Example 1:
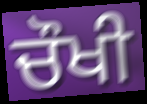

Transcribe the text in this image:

ਚੌਖੀ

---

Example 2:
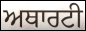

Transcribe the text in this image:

ਅਥਾਰਟੀ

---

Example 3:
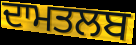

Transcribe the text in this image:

ਦਾਮਤਲਬ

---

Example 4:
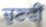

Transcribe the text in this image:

ਚੁਣਵੀਂ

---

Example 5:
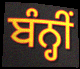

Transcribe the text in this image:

ਬੰਨ੍ਹੀਂ